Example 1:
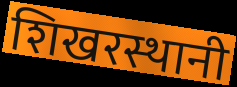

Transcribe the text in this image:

शिखरस्थानी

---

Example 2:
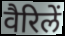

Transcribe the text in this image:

वैरिलें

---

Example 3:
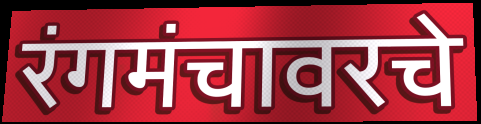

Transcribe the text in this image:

रंगमंचावरचे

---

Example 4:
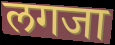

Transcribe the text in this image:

लगजा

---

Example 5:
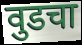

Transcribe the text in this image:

वुडचा